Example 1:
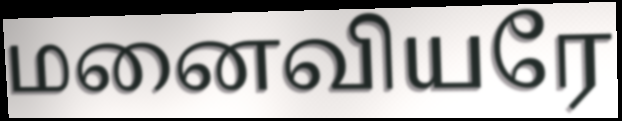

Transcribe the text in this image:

மனைவியரே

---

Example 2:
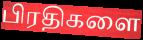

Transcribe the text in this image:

பிரதிகளை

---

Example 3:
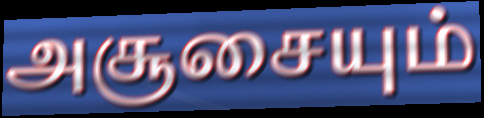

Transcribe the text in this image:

அசூசையும்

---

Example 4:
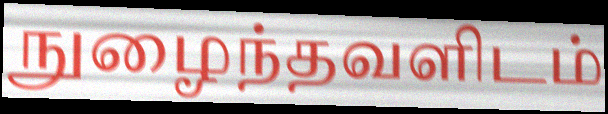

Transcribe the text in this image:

நுழைந்தவளிடம்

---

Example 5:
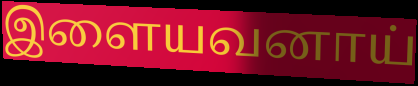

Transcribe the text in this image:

இளையவனாய்